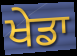
ਖੇਡਾ